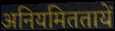
अनियमिततायें